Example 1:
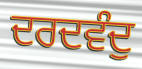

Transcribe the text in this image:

ਦਰਦਵੰਦੁ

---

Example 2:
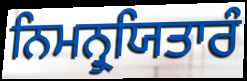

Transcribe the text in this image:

ਨਿਮਨ੍ਤ੍ਰਯਿਤਾਰੰ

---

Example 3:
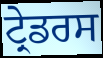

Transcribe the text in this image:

ਟ੍ਰੇਡਰਸ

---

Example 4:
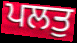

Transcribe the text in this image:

ਪਲਤੁ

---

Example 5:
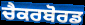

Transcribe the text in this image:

ਚੈਕਰਬੋਰਡ